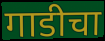
गाडीचा